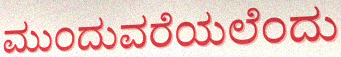
ಮುಂದುವರೆಯಲೆಂದು